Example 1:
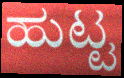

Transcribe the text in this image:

ಹುಟ್ಟ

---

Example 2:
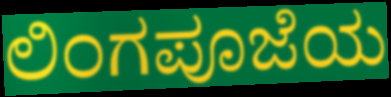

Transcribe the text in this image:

ಲಿಂಗಪೂಜೆಯ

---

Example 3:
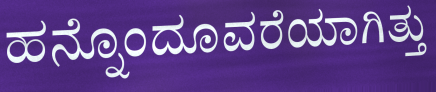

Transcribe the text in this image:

ಹನ್ನೊಂದೂವರೆಯಾಗಿತ್ತು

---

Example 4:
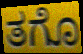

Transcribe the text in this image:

ತಗೊ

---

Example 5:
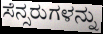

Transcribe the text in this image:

ಸೆನ್ಸರುಗಳನ್ನು